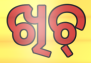
ଖିଚ୍